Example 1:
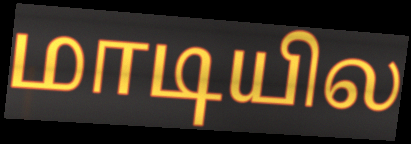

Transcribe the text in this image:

மாடியில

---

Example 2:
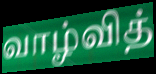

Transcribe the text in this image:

வாழ்வித்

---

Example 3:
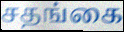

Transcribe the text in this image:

சதங்கை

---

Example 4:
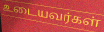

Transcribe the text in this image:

உடையவர்கள்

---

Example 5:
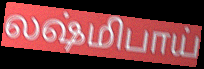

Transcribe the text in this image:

லஷ்மிபாய்